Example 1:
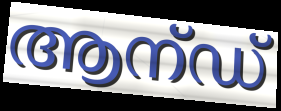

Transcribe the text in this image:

ആന്ഡ്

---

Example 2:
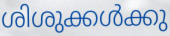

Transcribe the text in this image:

ശിശുക്കൾക്കു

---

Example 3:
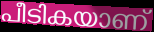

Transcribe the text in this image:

പീടികയാണ്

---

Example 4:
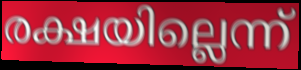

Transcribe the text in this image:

രക്ഷയില്ലെന്ന്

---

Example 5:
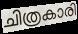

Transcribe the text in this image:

ചിത്രകാരി